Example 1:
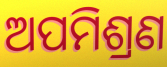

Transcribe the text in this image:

ଅପମିଶ୍ରଣ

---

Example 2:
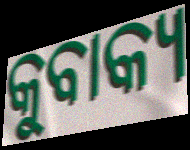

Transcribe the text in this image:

କୁବାକ୍ୟ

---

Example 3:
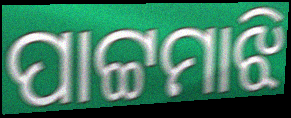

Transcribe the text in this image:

ପାଟ୍ଟମାଝି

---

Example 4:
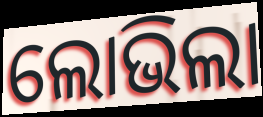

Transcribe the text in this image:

ଲୋଭିଲା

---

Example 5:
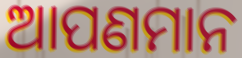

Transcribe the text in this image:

ଆପଣମାନ